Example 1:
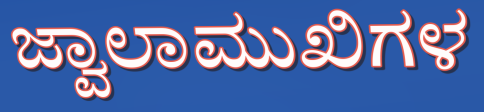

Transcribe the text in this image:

ಜ್ವಾಲಾಮುಖಿಗಳ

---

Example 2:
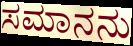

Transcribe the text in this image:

ಸಮಾನನು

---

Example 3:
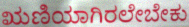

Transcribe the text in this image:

ಋಣಿಯಾಗಿರಲೇಬೇಕು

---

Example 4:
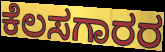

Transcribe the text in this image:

ಕೆಲಸಗಾರರ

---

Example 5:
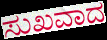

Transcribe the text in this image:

ಸುಖವಾದ